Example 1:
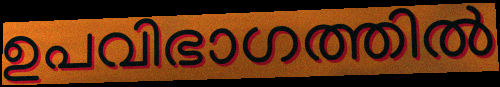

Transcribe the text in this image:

ഉപവിഭാഗത്തിൽ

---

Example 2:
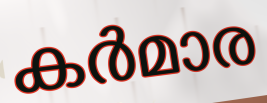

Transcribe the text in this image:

കർമാര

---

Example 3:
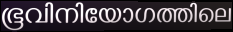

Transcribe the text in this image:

ഭൂവിനിയോഗത്തിലെ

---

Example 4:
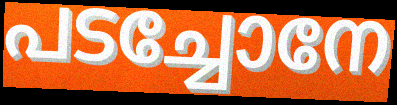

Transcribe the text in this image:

പടച്ചോനേ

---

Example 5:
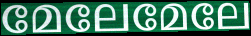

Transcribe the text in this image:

മേലേമേലേ